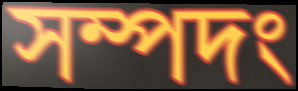
সম্পদং